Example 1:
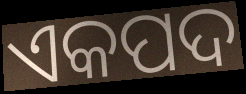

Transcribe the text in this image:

ଏକପଦ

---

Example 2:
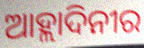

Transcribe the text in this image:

ଆହ୍ଲାଦିନୀର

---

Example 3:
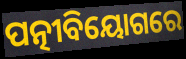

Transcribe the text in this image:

ପତ୍ନୀବିୟୋଗରେ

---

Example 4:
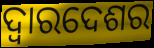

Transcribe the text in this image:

ଦ୍ୱାରଦେଶର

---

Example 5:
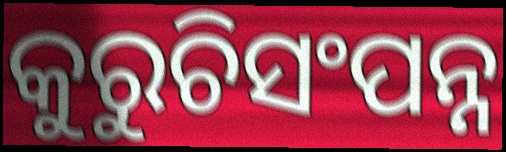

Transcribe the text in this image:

କୁରୁଚିସଂପନ୍ନ